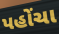
પહોંચા